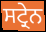
ਸਟ੍ਰੇਨ